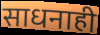
साधनाही